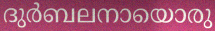
ദുർബലനായൊരു